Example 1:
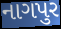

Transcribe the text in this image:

નાગપુર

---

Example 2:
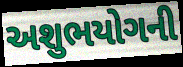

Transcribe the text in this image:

અશુભયોગની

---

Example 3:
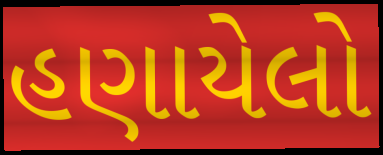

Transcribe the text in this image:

હણાયેલો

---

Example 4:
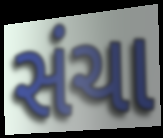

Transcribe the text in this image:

સંચા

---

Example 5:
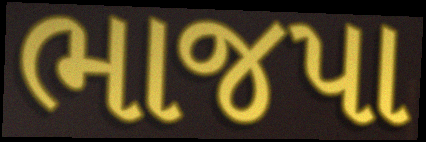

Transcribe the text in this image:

ભાજપા